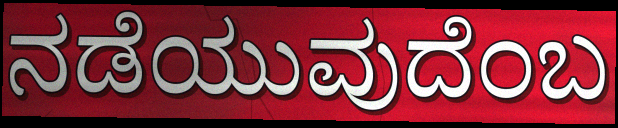
ನಡೆಯುವುದೆಂಬ